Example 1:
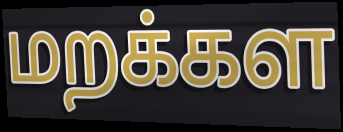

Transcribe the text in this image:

மறக்கள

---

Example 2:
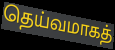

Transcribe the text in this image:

தெய்வமாகத்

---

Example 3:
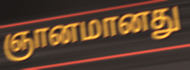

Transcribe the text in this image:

ஞானமானது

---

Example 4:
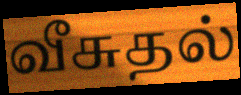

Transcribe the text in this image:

வீசுதல்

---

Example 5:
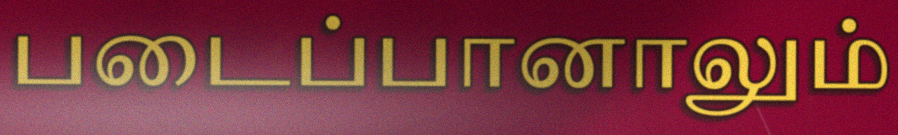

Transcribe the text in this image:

படைப்பானாலும்